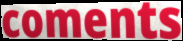
coments